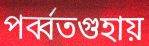
পর্ব্বতগুহায়